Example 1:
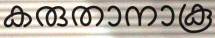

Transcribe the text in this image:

കരുതാനാകൂ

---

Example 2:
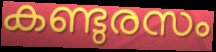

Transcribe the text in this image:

കണ്ടുരസം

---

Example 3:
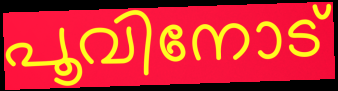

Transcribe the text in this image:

പൂവിനോട്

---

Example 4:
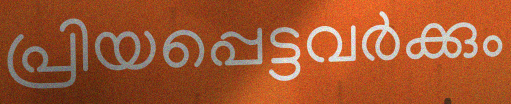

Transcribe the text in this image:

പ്രിയപ്പെട്ടവർക്കും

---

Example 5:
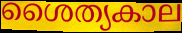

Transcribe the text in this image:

ശൈത്യകാല